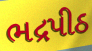
ભદ્રપીઠ